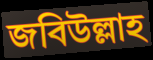
জবিউল্লাহ